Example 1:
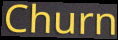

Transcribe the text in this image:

Churn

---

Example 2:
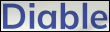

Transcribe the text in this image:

Diable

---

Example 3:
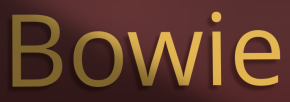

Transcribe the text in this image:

Bowie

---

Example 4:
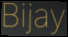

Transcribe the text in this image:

Bijay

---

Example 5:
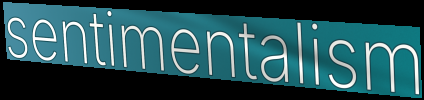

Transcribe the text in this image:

sentimentalism